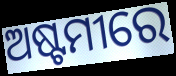
ଅଷ୍ଟମୀରେ